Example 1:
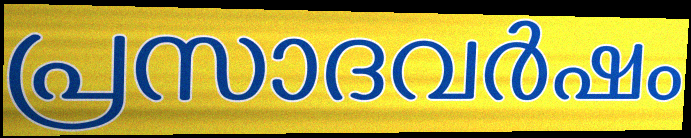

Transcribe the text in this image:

പ്രസാദവർഷം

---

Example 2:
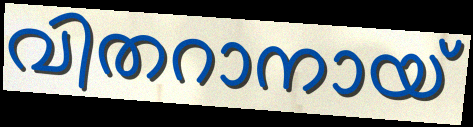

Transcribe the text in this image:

വിതറാനായ്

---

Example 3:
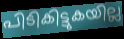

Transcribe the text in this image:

പിടികിട്ടുകയില്ല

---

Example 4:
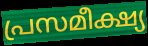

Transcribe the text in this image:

പ്രസമീക്ഷ്യ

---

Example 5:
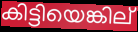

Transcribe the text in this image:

കിട്ടിയെങ്കില്